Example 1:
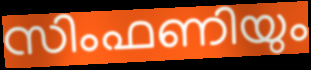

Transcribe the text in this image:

സിംഫണിയും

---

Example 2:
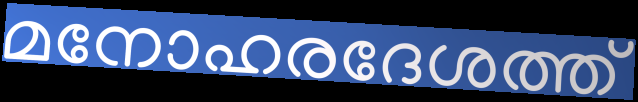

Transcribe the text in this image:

മനോഹരദേശത്ത്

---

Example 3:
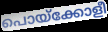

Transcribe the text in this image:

പൊയ്ക്കോളീ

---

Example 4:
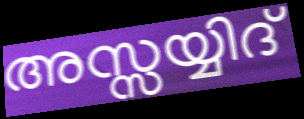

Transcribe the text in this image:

അസ്സയ്യിദ്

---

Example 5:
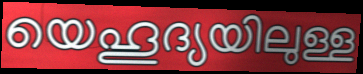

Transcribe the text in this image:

യെഹൂദ്യയിലുള്ള